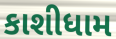
કાશીધામ